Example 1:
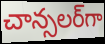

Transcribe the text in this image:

చాన్సలర్‌గా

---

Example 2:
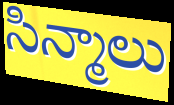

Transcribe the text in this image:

సిన్మాలు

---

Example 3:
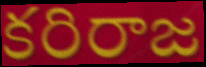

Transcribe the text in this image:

కరిరాజ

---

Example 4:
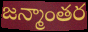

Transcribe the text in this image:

జన్మాంతర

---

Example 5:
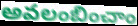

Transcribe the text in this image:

అవలంబించాం